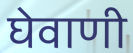
घेवाणी